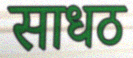
साधठ